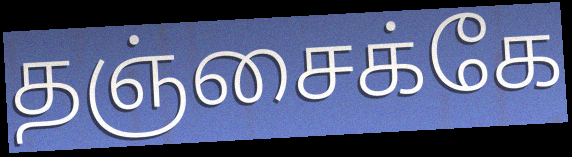
தஞ்சைக்கே